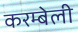
करम्बेली